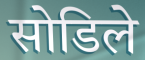
सोडिले